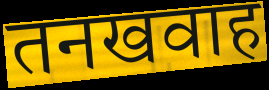
तनखवाह